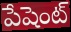
పేషెంట్